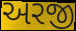
અરજી